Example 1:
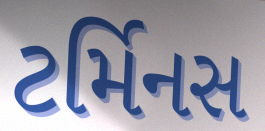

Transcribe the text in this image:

ટર્મિનસ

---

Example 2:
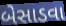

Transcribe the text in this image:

બેસાડવા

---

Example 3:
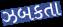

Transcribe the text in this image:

ઝબકતા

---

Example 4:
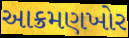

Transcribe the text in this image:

આક્રમણખોર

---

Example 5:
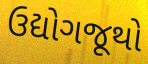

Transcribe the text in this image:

ઉદ્યોગજૂથો